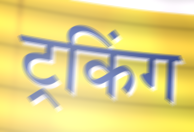
ट्रकिंग